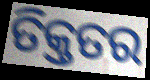
ତିକ୍ତତର